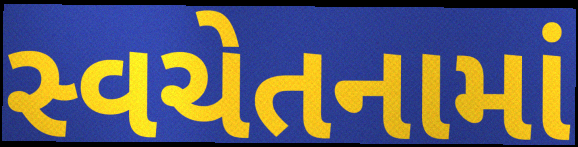
સ્વચેતનામાં